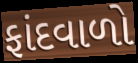
ફાંદવાળો